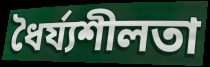
ধৈর্য্যশীলতা